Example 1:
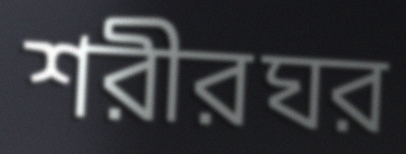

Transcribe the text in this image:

শরীরঘর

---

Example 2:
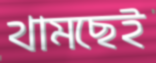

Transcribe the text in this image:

থামছেই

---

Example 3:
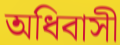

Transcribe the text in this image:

অধিবাসী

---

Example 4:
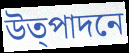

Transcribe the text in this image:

উত্পাদনে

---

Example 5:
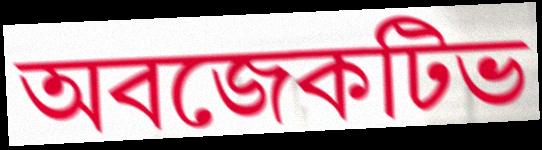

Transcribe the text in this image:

অবজেকটিভ